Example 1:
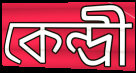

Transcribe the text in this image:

কেন্দ্রী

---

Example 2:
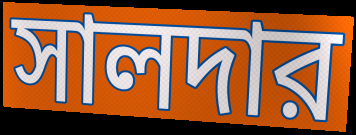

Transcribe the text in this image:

সালদার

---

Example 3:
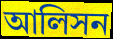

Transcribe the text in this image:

আলিসন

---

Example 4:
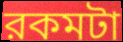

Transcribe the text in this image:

রকমটা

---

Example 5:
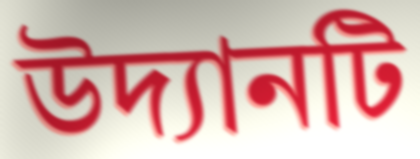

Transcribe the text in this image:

উদ্যানটি